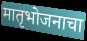
मातृभोजनाचा